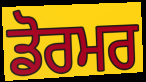
ਡੋਰਮਰ